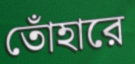
তোঁহারে